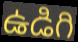
ఉడిగి